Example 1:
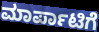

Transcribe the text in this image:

ಮಾರ್ಪಾಟಿಗೆ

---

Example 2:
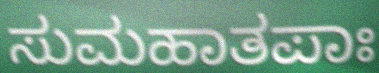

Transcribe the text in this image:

ಸುಮಹಾತಪಾಃ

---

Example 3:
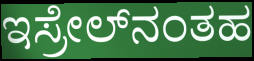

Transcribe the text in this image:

ಇಸ್ರೇಲ್‌ನಂತಹ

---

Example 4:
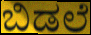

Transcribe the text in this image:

ಬಿಡಲೆ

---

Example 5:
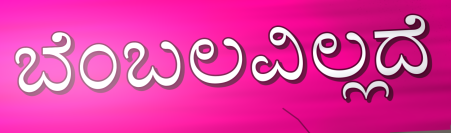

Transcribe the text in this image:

ಬೆಂಬಲವಿಲ್ಲದೆ